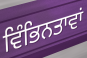
ਵਿੰਭਿਨਤਾਵਾਂ